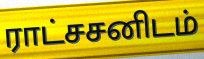
ராட்சசனிடம்